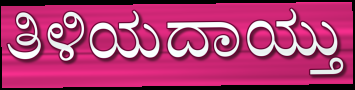
ತಿಳಿಯದಾಯ್ತು